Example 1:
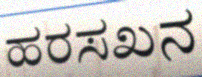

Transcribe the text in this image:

ಹರಸಖನ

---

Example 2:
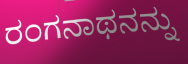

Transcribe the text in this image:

ರಂಗನಾಥನನ್ನು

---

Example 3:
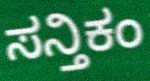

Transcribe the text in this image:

ಸನ್ತಿಕಂ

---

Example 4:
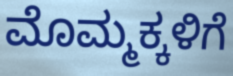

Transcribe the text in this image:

ಮೊಮ್ಮಕ್ಕಳಿಗೆ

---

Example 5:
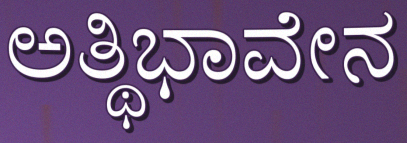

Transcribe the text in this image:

ಅತ್ಥಿಭಾವೇನ